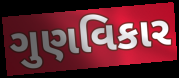
ગુણવિકાર